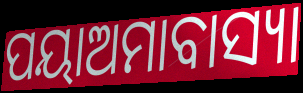
ପୟାଅମାବାସ୍ୟା